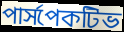
পার্সপেকটিভ